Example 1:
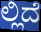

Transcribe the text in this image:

ಲ್ಲಿದೆ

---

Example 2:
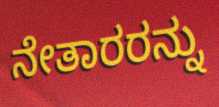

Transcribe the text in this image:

ನೇತಾರರನ್ನು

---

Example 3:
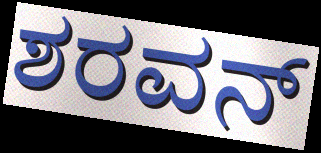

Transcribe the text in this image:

ಶರವನ್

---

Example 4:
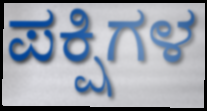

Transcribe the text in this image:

ಪಕ್ಷಿಗಳ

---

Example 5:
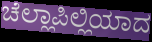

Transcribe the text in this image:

ಚೆಲ್ಲಾಪಿಲ್ಲಿಯಾದ